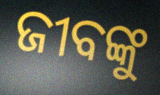
ଜୀବଙ୍କୁ